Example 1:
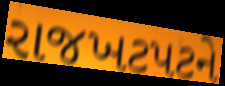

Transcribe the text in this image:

રાજખટપટને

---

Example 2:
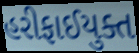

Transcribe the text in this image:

હરીફાઈયુક્ત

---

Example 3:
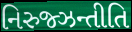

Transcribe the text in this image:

નિરુજ્ઝન્તીતિ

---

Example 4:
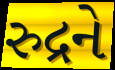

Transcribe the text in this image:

રુદ્રને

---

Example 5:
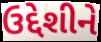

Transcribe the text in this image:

ઉદ્દેશીને